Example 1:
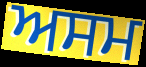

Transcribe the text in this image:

ਅਸਮ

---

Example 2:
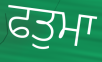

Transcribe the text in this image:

ਫਤੁਮਾ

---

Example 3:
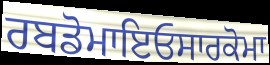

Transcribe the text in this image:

ਰਬਡੋਮਾਇਓਸਾਰਕੋਮਾ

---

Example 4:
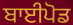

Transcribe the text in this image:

ਬਾਈਪੋਡ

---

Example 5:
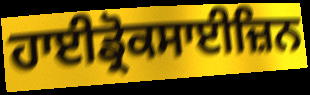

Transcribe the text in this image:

ਹਾਈਡ੍ਰੋਕਸਾਈਜ਼ਿਨ